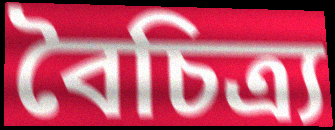
বৈচিত্ৰ্য